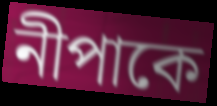
নীপাকে